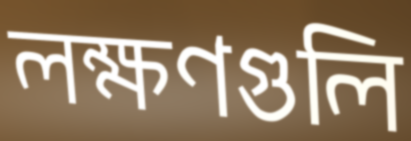
লক্ষণগুলি